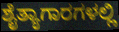
ಶೈತ್ಯಾಗಾರಗಳಲ್ಲಿ